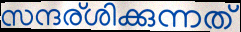
സന്ദര്ശിക്കുന്നത്